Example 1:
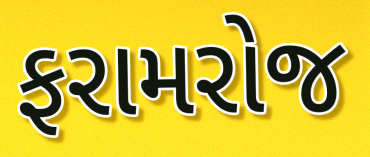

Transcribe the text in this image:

ફરામરોજ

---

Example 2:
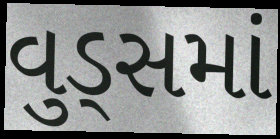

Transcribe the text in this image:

વુડ્સમાં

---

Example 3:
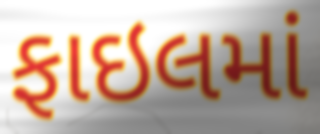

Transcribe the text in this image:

ફાઇલમાં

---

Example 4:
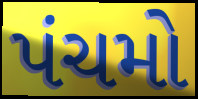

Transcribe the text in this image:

પંચમો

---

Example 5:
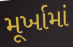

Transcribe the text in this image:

મૂર્ખામાં